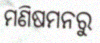
ମଣିଷମନରୁ